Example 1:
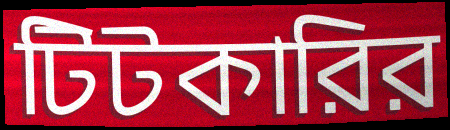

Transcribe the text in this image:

টিটকারির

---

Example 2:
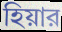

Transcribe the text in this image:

হিয়ার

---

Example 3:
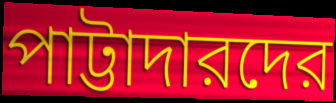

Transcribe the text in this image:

পাট্টাদারদের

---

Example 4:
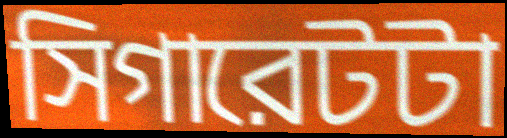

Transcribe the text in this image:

সিগারেটটা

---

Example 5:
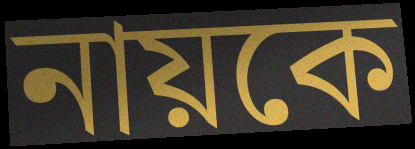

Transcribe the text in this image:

নায়কে